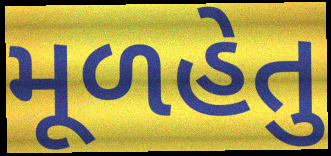
મૂળહેતુ